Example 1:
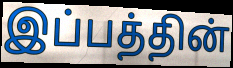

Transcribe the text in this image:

இப்பத்தின்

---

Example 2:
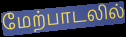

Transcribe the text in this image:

மேற்பாடலில்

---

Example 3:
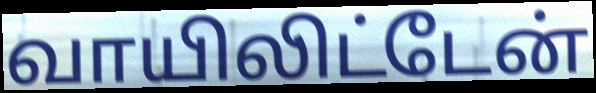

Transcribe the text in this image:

வாயிலிட்டேன்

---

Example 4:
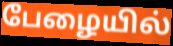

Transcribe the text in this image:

பேழையில்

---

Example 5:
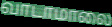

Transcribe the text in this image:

வாடாமாலை